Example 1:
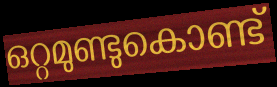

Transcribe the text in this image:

ഒറ്റമുണ്ടുകൊണ്ട്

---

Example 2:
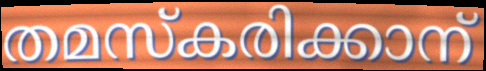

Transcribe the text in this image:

തമസ്കരിക്കാന്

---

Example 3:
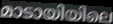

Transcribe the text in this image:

മാടായിയിലെ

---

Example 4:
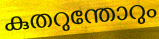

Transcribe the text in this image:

കുതറുന്തോറും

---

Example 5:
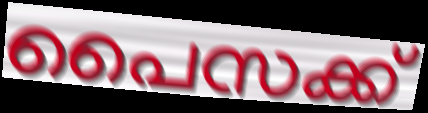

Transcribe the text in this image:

പൈസക്ക്